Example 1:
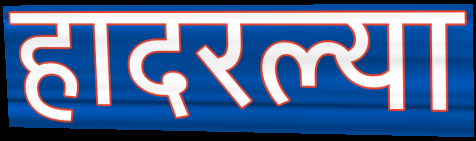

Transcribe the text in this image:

हादरल्या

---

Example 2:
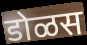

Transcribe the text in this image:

डोळस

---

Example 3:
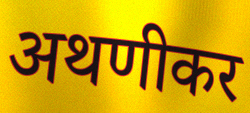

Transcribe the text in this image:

अथणीकर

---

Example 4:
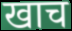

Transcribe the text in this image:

खाच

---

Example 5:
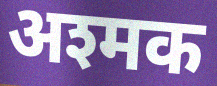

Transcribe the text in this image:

अश्मक